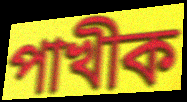
পাখীক